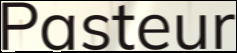
Pasteur